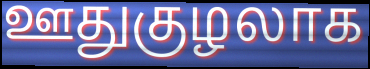
ஊதுகுழலாக